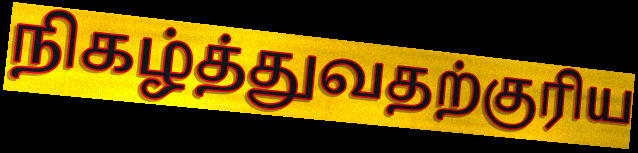
நிகழ்த்துவதற்குரிய